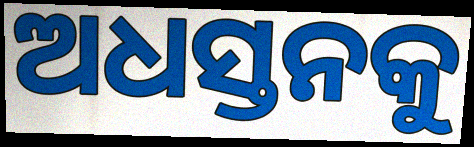
ଅଧସ୍ତନକୁ